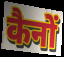
कैनों